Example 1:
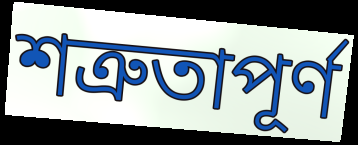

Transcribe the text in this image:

শত্রুতাপূর্ণ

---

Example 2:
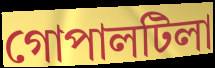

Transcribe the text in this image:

গোপালটিলা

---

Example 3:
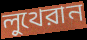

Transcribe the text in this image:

লুথেরান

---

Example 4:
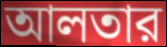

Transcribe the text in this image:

আলতার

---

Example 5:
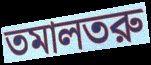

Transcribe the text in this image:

তমালতরু